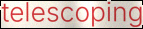
telescoping